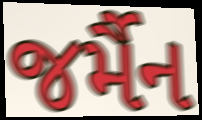
જર્મૈન